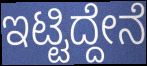
ಇಟ್ಟಿದ್ದೇನೆ